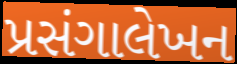
પ્રસંગાલેખન